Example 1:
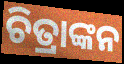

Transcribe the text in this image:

ଚିତ୍ରାଙ୍କନ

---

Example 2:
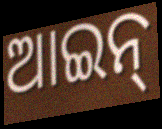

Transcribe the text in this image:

ଆଇନ୍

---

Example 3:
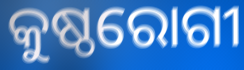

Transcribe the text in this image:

କୁଷ୍ଠରୋଗୀ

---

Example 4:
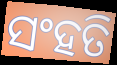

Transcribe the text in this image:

ସଂହତି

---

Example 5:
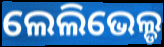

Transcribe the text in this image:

ଲେଲିଭେଲ୍ଡ